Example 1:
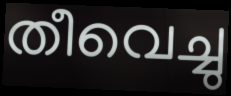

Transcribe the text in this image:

തീവെച്ചു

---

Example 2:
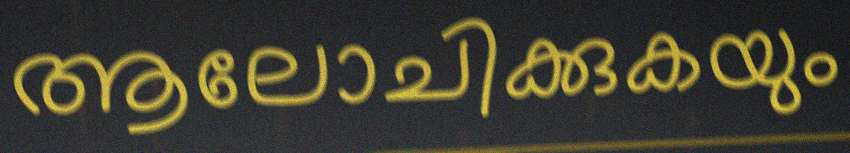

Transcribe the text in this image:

ആലോചിക്കുകയും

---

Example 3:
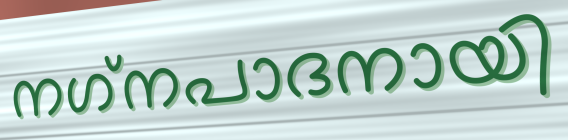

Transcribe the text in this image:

നഗ്‌നപാദനായി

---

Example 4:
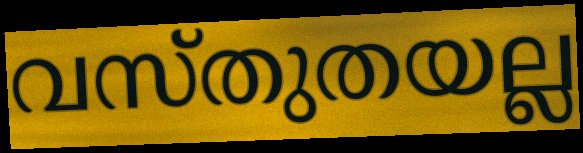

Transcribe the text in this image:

വസ്തുതയല്ല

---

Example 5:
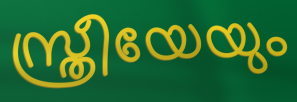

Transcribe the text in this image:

സ്ത്രീയേയും